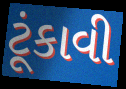
ટૂંકાવી